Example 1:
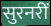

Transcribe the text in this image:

सुरनरीं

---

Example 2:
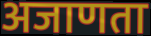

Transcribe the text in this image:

अजाणता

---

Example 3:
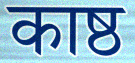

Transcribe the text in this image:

काष्ठ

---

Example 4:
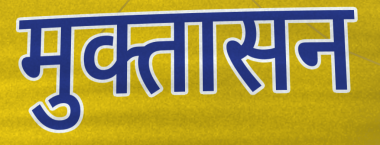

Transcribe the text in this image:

मुक्तासन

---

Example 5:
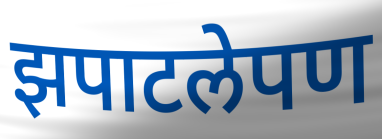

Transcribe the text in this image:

झपाटलेपण